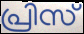
പ്രിസ്